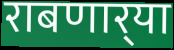
राबणार्‍या